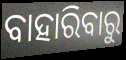
ବାହାରିବାରୁ